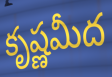
కృష్ణమీద